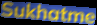
Sukhatme